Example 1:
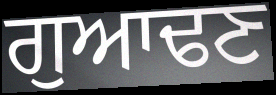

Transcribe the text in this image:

ਗੁਆਢਣ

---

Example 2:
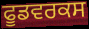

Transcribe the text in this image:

ਫੂਡਵਰਕਸ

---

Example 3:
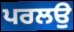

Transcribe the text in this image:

ਪਰਲਉ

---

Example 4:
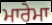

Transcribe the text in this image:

ਮਾਰੇਮਾ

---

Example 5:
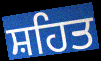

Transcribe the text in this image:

ਸ਼ਹਿਤ